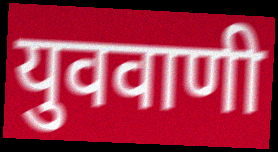
युववाणी